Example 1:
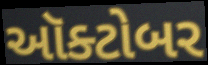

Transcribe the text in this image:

ઑક્ટોબર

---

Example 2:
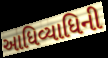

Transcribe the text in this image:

આધિવ્યાધિની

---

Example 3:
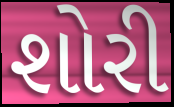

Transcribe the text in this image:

શોરી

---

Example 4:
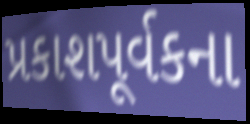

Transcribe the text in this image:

પ્રકાશપૂર્વકના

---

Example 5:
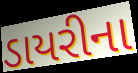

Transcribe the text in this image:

ડાયરીના